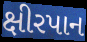
ક્ષીરપાન